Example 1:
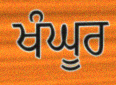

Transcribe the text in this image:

ਖੰਘੂਰ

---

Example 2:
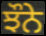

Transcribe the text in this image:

ਝੌਨੇ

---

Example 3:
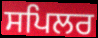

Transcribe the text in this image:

ਸਪਿਲਰ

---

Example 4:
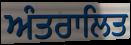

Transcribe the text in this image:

ਅੰਤਰਾਲਿਤ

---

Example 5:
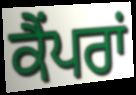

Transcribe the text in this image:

ਕੈਂਪਰਾਂ